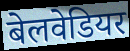
बेलवेडियर